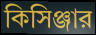
কিসিঞ্জার